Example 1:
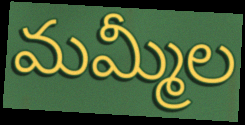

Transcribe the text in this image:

మమ్మీల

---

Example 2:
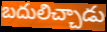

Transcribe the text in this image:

బదులిచ్చాడు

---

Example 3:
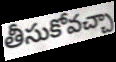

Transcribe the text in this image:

తీసుకోవచ్చా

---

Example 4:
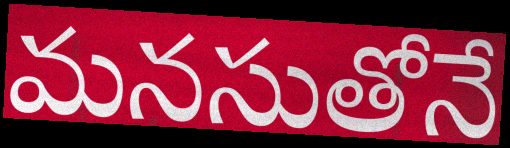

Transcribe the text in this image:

మనసుతోనే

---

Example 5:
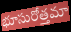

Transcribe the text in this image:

భూసురోత్తమా